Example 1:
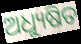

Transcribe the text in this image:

ଅଧ୍ୟୁଷିତ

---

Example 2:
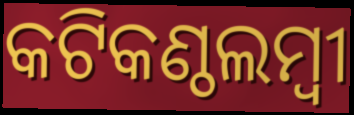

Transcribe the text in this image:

କଟିକଣ୍ଠଲମ୍ବୀ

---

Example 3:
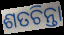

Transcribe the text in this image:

ଶତଚିନ୍ତା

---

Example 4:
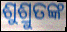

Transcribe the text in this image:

ଶୁଶ୍ରୁତଙ୍କ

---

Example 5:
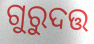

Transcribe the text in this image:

ଗୁରୁଦତ୍ତ